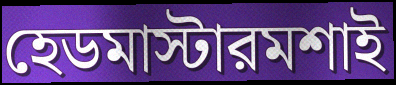
হেডমাস্টারমশাই